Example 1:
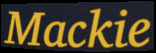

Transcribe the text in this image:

Mackie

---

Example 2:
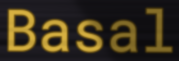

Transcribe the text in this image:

Basal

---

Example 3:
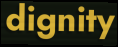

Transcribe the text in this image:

dignity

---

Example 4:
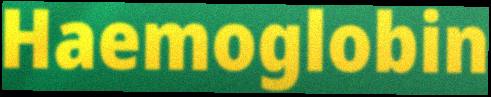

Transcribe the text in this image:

Haemoglobin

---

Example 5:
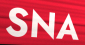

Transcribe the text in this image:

SNA